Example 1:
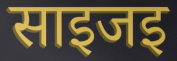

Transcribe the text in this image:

साइजइ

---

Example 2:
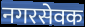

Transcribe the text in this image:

नगरसेवक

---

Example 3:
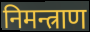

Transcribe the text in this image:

निमन्त्राण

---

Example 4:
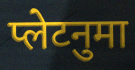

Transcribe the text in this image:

प्लेटनुमा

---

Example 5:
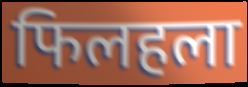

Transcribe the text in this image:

फिलहला